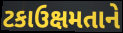
ટકાઉક્ષમતાને